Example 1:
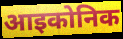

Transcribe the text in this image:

आइकोनिक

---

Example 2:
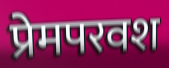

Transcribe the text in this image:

प्रेमपरवश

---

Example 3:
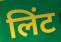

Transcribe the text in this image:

लिंट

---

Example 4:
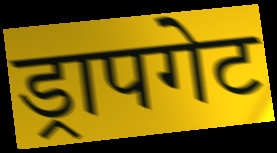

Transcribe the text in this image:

ड्रापगेट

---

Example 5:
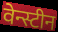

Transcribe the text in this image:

वेन्स्टीन